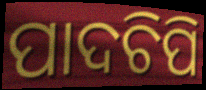
ପାଦଚିପି